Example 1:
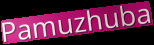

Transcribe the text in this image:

Pamuzhuba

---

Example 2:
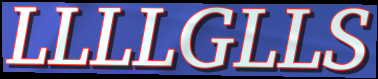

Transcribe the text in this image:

LLLLGLLS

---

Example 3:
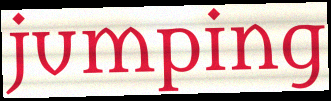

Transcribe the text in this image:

jumping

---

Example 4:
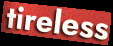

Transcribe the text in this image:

tireless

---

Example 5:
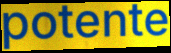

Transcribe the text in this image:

potente